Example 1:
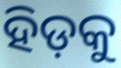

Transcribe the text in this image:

ହିଡ଼କୁ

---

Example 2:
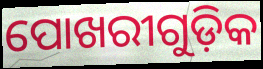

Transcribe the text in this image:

ପୋଖରୀଗୁଡ଼ିକ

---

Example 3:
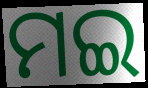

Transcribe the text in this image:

ମଇ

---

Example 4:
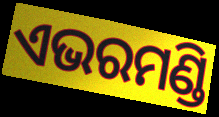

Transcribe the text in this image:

ଏଭରମଣ୍ଡି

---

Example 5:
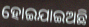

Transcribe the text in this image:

ହୋଇଯାଇଅଛି